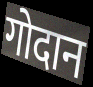
गोदान